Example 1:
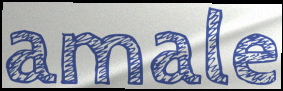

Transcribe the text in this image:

amale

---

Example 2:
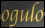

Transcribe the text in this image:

ogulo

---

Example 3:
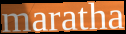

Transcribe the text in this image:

maratha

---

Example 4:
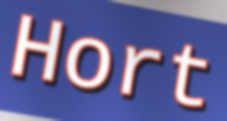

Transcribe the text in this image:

Hort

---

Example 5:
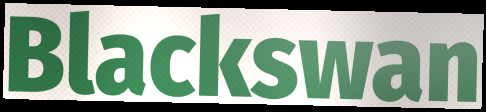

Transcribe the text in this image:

Blackswan